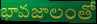
భావజాలంతో